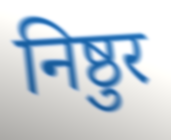
निष्ठुर